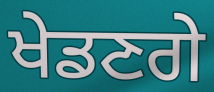
ਖੇਡਣਗੇ